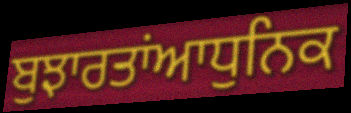
ਬੁਝਾਰਤਾਂਆਧੁਨਿਕ